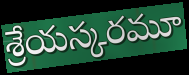
శ్రేయస్కరమూ